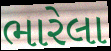
ભારેલા